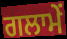
ਗਲਾਮੇਂ